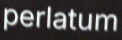
perlatum